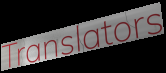
Translators